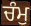
ਚੰਮੁ